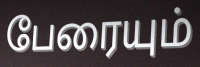
பேரையும்